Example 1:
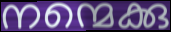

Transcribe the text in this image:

നന്മെക്കു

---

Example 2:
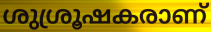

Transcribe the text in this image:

ശുശ്രൂഷകരാണ്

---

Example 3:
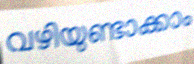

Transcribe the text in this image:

വഴിയുണ്ടാക്കാം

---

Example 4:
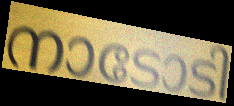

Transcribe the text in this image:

നാടോടി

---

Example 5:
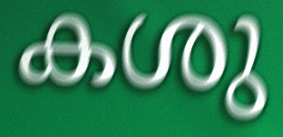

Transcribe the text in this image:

കശു